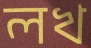
লখ